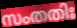
സംതതിഃ